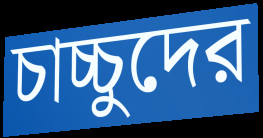
চাচ্চুদের